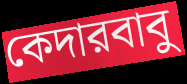
কেদারবাবু